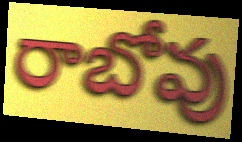
రాబోవు